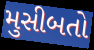
મુસીબતો